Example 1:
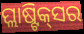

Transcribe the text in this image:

ପ୍ଲାଷ୍ଟିକ୍‌ସର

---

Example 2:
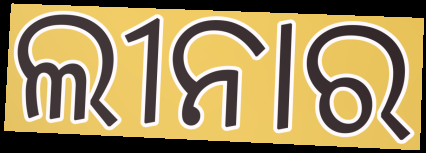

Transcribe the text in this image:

ଲୀନାର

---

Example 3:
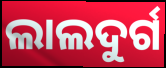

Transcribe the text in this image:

ଲାଲଦୁର୍ଗ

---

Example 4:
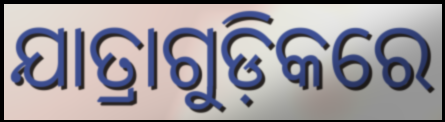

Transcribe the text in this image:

ଯାତ୍ରାଗୁଡ଼ିକରେ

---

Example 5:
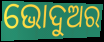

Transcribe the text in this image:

ଭୋଦୁଅର